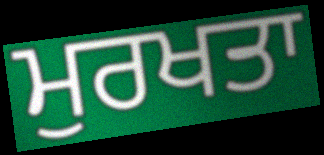
ਮੁਰਖਤਾ